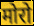
मोरो